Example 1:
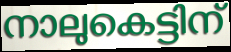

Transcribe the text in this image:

നാലുകെട്ടിന്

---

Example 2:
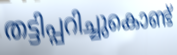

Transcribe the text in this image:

തട്ടിപ്പറിച്ചുകൊണ്ട്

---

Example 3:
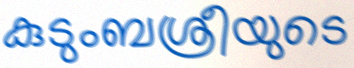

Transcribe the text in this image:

കുടുംബശ്രീയുടെ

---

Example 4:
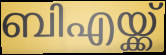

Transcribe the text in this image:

ബിഎയ്ക്ക്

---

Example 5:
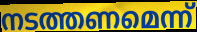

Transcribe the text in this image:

നടത്തണമെന്ന്